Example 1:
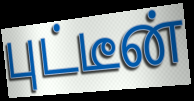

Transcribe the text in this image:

புட்டீன்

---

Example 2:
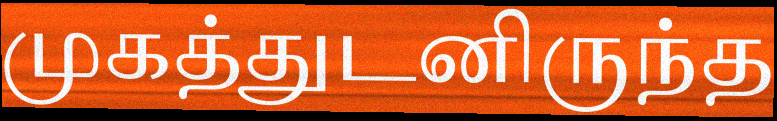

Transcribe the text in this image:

முகத்துடனிருந்த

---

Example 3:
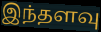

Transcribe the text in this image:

இந்தளவு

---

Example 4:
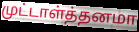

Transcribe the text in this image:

முட்டாள்த்தனமா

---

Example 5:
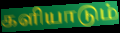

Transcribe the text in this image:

களியாடும்